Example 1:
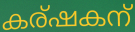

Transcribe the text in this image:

കര്ഷകന്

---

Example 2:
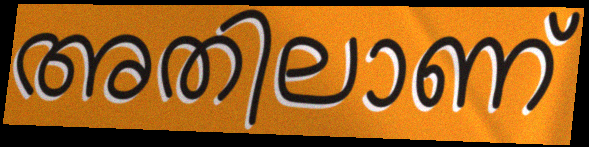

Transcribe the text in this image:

അതിലാണ്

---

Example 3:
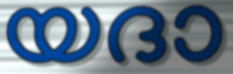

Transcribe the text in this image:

യദാ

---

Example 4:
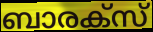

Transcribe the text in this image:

ബാരക്സ്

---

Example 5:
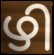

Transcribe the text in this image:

ഴി